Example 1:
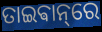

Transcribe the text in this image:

ତାଇଵାନ୍‌ରେ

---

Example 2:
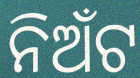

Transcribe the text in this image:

ନିଅଁଟ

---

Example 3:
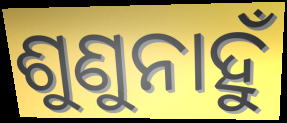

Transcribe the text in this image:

ଶୁଣୁନାହୁଁ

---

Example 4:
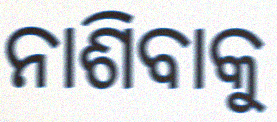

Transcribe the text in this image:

ନାଶିବାକୁ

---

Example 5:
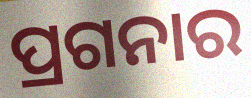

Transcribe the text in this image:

ପ୍ରଗନାର